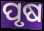
ପୃଷ